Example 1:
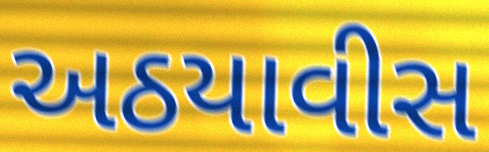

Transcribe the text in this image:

અઠયાવીસ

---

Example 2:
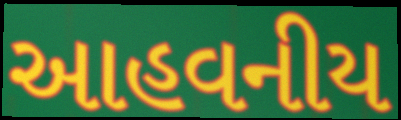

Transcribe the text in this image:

આહવનીય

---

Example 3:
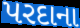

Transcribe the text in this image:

પરદાના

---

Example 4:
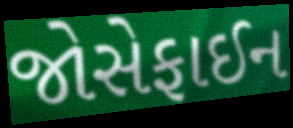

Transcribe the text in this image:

જોસેફાઈન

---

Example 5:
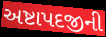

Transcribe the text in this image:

અષ્ટાપદજીની